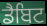
ਡੈਬਿਟ